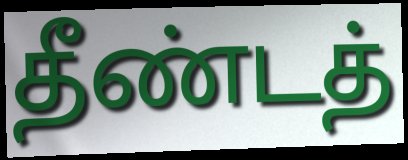
தீண்டத்